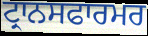
ਟ੍ਰਾਨਸਫਾਰਮਰ